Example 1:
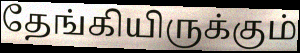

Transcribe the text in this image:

தேங்கியிருக்கும்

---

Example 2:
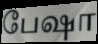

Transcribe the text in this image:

பேஷா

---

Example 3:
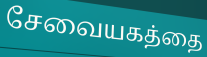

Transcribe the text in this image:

சேவையகத்தை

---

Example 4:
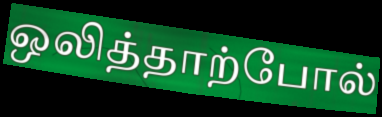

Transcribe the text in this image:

ஒலித்தாற்போல்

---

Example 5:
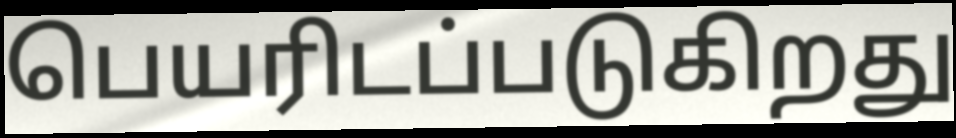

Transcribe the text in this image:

பெயரிடப்படுகிறது